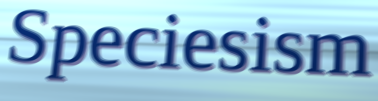
Speciesism